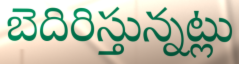
బెదిరిస్తున్నట్లు